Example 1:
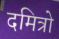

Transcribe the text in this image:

दमित्रो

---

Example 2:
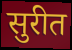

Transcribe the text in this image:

सुरीत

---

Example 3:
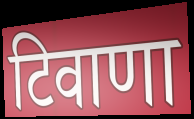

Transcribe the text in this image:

टिवाणा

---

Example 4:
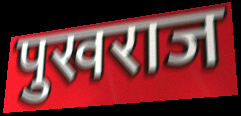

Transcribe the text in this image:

पुखराज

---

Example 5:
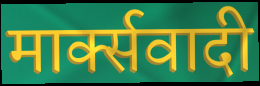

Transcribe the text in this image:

मार्क्सवादी